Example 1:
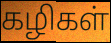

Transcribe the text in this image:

கழிகள்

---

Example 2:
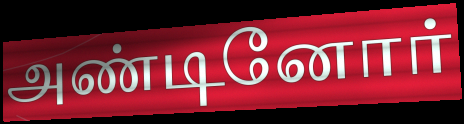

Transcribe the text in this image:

அண்டினோர்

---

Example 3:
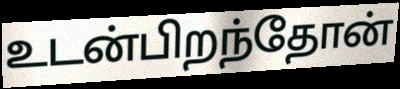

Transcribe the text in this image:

உடன்பிறந்தோன்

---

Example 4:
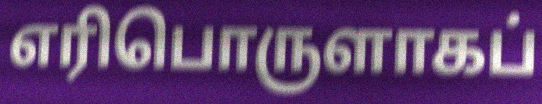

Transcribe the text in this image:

எரிபொருளாகப்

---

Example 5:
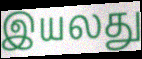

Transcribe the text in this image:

இயலது